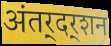
अंतर्दर्शन